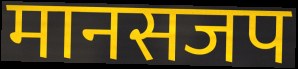
मानसजप